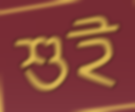
শুই